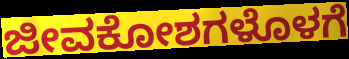
ಜೀವಕೋಶಗಳೊಳಗೆ